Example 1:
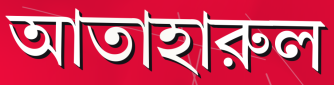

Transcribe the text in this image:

আতাহারুল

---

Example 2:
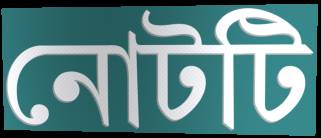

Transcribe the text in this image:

নোটটি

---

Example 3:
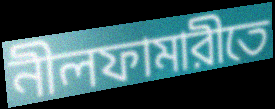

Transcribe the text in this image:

নীলফামারীতে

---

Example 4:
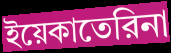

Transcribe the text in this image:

ইয়েকাতেরিনা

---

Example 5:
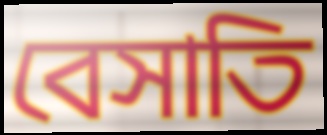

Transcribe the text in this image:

বেসাতি